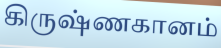
கிருஷ்ணகானம்